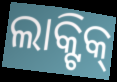
ଲାକ୍ଟିକ୍